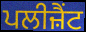
ਪਲੀਜ਼ੈਂਟ